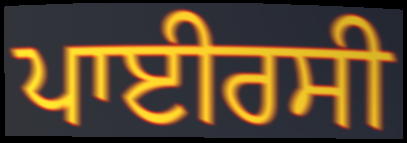
ਪਾਈਰਸੀ